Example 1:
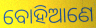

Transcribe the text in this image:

ବୋହିଆଣେ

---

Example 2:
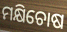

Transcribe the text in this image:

ମକ୍ଷିଚୋଷ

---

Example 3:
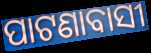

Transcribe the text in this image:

ପାଟଣାବାସୀ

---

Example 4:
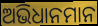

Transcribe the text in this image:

ଅଭିଧାନମାନ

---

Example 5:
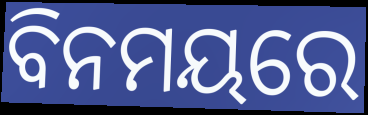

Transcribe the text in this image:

ବିନମୟରେ